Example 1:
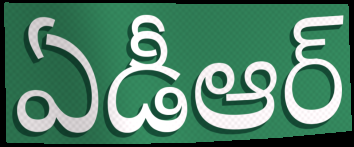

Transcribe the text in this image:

ఏడీఆర్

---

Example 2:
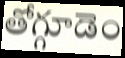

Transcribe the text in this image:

తోగ్గూడెం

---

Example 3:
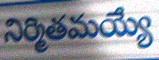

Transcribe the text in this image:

నిర్మితమయ్యే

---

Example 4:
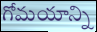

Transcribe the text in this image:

గోమయాన్ని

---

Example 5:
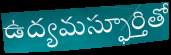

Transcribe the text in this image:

ఉద్యమస్ఫూర్తితో